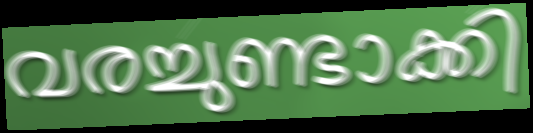
വരച്ചുണ്ടാക്കി